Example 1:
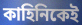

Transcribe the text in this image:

কাহিনিকেই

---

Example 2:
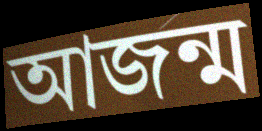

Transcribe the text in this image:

আজন্ম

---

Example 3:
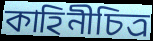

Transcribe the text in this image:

কাহিনীচিত্র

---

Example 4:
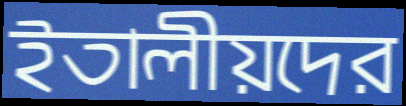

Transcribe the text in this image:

ইতালীয়দের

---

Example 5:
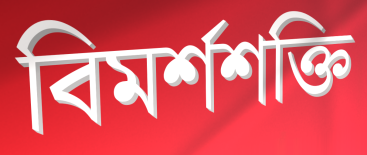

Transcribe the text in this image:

বিমর্শশক্তি